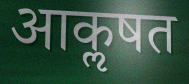
आकॢषत